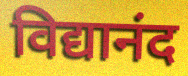
विद्यानंद